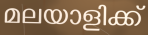
മലയാളിക്ക്